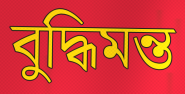
বুদ্ধিমন্ত